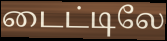
டைட்டிலே